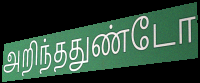
அறிந்ததுண்டோ